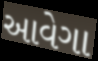
આવેગા